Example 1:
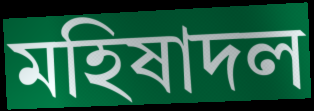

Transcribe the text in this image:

মহিষাদল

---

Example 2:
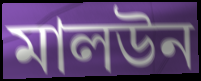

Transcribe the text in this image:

মালউন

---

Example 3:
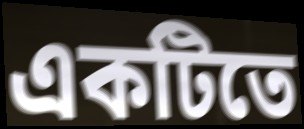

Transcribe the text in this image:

একটিতে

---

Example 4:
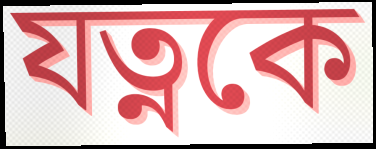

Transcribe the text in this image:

যত্নকে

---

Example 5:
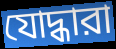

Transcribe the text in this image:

যোদ্ধারা